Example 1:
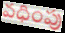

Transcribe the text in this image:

వధింపు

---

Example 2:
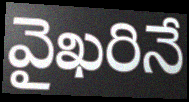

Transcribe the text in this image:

వైఖరినే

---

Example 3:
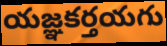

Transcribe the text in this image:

యజ్ఞకర్తయగు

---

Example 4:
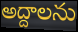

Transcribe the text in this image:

అద్దాలను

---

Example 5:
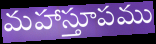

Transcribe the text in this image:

మహాస్తూపము